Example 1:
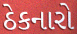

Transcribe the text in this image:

ઠેકનારો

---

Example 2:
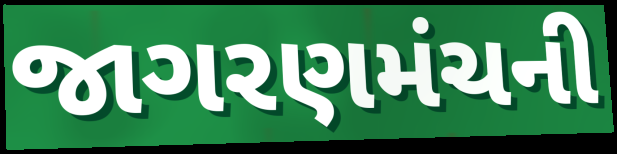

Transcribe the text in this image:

જાગરણમંચની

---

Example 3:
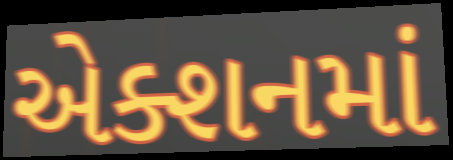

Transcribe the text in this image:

એક્શનમાં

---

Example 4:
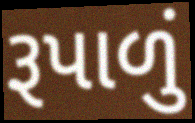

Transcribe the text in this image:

રૂપાળું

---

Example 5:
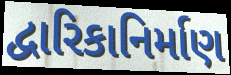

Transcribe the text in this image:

દ્વારિકાનિર્માણ